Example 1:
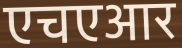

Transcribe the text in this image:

एचएआर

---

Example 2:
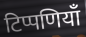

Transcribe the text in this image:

टिप्पणियाँ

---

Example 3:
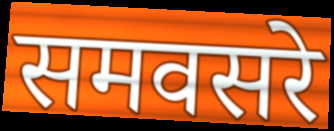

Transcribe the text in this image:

समवसरे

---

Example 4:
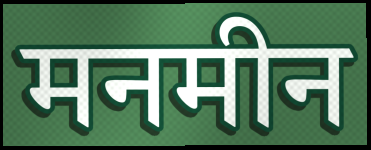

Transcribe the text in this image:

मनमीन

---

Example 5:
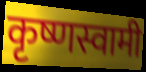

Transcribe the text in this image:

कृष्णस्वामी